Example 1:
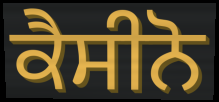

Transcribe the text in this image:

ਕੈਸੀਨੋ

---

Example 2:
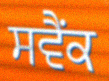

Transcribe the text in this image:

ਸਵੈਂਕ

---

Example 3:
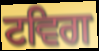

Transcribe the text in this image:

ਟਵਿਗ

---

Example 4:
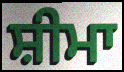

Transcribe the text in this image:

ਸ਼ੀਮਾ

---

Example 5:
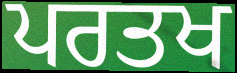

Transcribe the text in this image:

ਪਰਤਖ